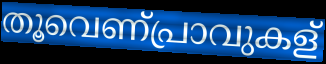
തൂവെണ്പ്രാവുകള്